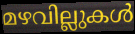
മഴവില്ലുകൾ